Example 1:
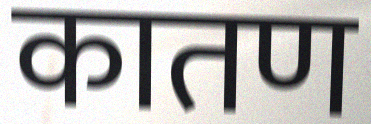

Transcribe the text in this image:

कातण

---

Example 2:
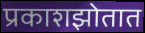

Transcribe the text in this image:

प्रकाशझोतात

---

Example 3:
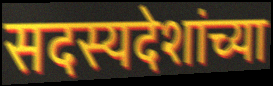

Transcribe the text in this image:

सदस्यदेशांच्या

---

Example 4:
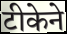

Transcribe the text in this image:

टीकेने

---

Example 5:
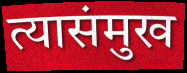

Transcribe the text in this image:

त्यासंमुख